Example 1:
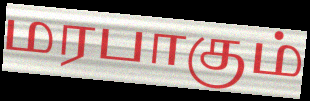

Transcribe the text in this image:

மரபாகும்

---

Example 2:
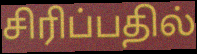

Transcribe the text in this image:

சிரிப்பதில்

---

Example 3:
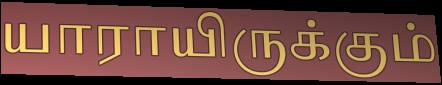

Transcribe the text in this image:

யாராயிருக்கும்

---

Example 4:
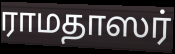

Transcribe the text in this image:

ராமதாஸர்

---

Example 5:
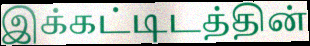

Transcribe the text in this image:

இக்கட்டிடத்தின்